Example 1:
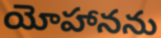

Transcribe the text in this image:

యోహానను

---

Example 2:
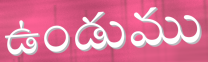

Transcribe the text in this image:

ఉండుము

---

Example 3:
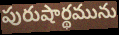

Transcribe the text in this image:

పురుషార్థమును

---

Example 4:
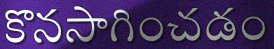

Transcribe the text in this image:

కొనసాగించడం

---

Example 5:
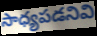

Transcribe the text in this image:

సాధ్యపడనివి